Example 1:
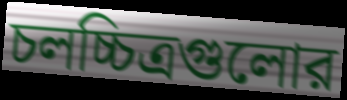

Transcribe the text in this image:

চলচ্চিত্রগুলোর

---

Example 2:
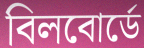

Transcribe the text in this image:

বিলবোর্ডে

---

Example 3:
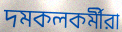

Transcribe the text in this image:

দমকলকর্মীরা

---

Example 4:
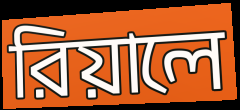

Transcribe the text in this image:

রিয়ালে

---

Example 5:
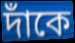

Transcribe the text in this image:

দাঁকে